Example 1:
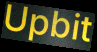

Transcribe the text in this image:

Upbit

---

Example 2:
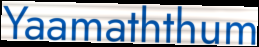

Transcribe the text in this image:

Yaamaththum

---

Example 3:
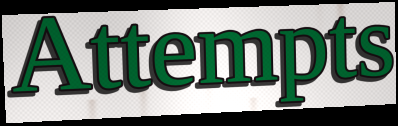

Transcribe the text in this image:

Attempts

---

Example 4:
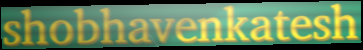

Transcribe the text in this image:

shobhavenkatesh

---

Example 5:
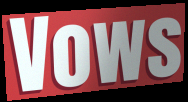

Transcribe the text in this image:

Vows